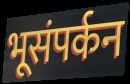
भूसंपर्कन